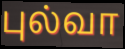
புல்வா